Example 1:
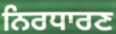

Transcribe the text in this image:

ਨਿਰਧਾਰਣ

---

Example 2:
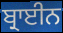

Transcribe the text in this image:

ਬ੍ਰਾਈਨ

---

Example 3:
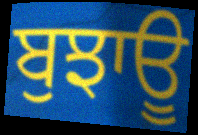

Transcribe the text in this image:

ਬੁਝਾਊ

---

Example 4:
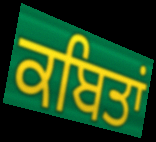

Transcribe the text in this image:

ਕਬਿਤਾਂ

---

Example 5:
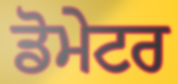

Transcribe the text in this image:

ਡੋਮੇਟਰ